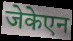
जेकेएन